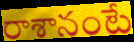
రాశానంటే